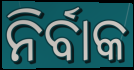
ନିର୍ବାକ